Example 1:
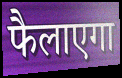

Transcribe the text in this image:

फैलाएगा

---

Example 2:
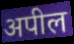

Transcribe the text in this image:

अपील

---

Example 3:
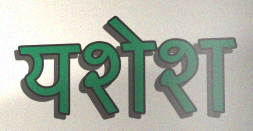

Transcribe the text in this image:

यशेश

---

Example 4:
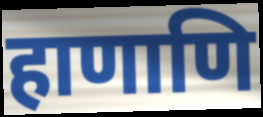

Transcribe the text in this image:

हाणाणि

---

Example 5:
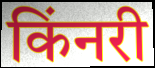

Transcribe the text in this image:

किंनरी